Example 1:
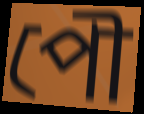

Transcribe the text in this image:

পৌ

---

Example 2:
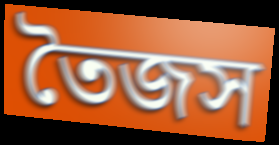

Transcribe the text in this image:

তৈজস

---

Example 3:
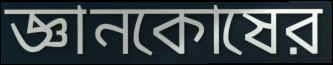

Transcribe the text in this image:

জ্ঞানকোষের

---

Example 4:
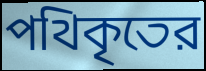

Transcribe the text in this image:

পথিকৃতের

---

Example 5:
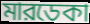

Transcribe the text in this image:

মারডেকা